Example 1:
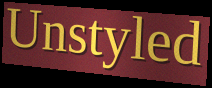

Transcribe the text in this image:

Unstyled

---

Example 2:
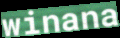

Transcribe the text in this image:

winana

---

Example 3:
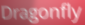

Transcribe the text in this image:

Dragonfly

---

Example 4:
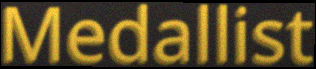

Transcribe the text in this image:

Medallist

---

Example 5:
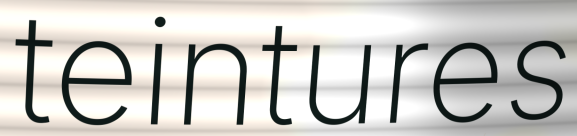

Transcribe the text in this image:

teintures